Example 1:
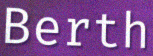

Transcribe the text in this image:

Berth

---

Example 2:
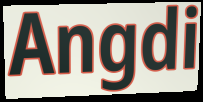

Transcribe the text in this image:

Angdi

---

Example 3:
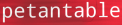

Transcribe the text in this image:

petantable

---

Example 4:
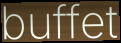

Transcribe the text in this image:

buffet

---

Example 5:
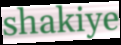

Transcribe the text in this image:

shakiye